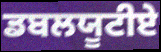
ਡਬਲਯੂਟੀਏ